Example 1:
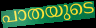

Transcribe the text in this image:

പാതയുടെ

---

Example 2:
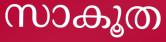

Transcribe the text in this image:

സാകൂത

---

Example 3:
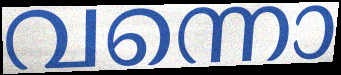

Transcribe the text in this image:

വന്നൊ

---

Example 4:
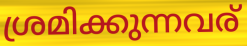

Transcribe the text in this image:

ശ്രമിക്കുന്നവര്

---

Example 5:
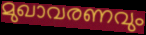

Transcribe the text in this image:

മുഖാവരണവും